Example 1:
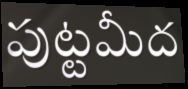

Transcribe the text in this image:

పుట్టమీద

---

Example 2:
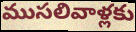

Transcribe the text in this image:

ముసలివాళ్లకు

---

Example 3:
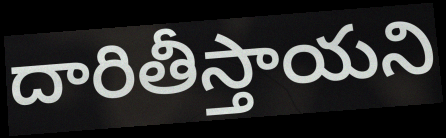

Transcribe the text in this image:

దారితీస్తాయని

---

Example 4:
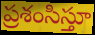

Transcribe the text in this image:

ప్రశంసిస్తూ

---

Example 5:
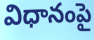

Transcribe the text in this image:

విధానంపై